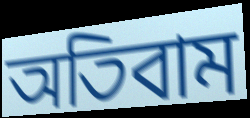
অতিবাম